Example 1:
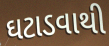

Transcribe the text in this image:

ઘટાડવાથી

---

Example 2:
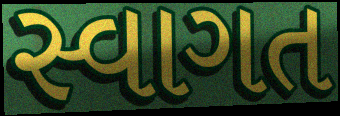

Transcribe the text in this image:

સ્વાગત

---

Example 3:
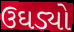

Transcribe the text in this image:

ઉઘડ્યો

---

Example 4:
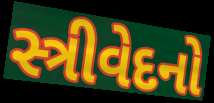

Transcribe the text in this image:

સ્ત્રીવેદનો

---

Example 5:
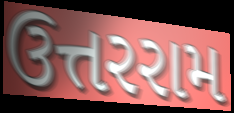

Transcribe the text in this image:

ઉત્તરરામ